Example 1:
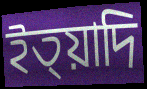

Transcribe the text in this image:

ইত্য়াদি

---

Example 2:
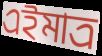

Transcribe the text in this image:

এইমাত্ৰ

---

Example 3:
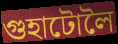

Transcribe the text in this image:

গুহাটোলৈ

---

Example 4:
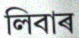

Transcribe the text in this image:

লিবাৰ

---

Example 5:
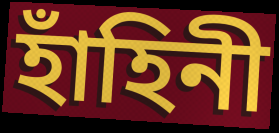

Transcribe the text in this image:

হাঁহিনী